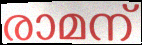
രാമന്